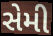
સેમી